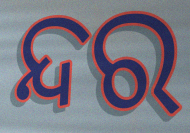
ନ୍ଦର